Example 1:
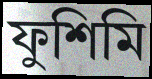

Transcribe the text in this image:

ফুশিমি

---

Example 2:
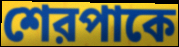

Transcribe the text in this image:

শেরপাকে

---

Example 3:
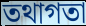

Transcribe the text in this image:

তথাগতা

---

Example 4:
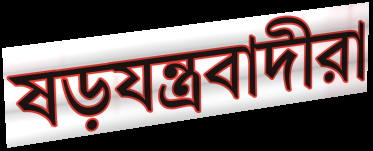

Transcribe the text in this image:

ষড়যন্ত্রবাদীরা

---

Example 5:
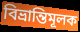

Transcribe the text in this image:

বিভ্রান্তিমূলক